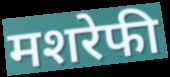
मशरेफी